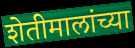
शेतीमालांच्या